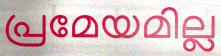
പ്രമേയമില്ല